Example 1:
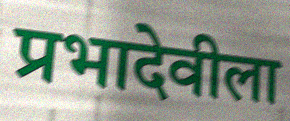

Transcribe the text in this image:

प्रभादेवीला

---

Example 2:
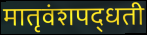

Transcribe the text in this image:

मातृवंशपद्धती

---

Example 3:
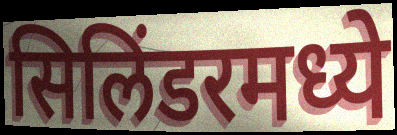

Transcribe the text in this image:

सिलिंडरमध्ये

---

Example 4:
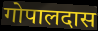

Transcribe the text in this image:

गोपालदास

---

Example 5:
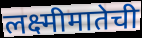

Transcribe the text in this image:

लक्ष्मीमातेची